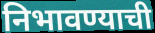
निभावण्याची